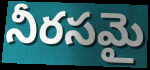
నీరసమై